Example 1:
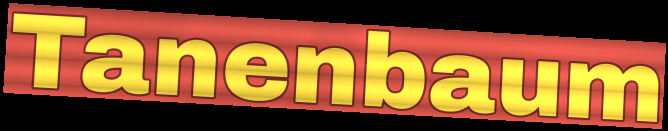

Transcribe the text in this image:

Tanenbaum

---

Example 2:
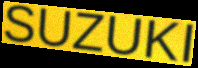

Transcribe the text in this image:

SUZUKI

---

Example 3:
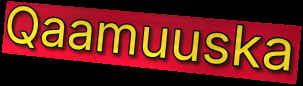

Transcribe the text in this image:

Qaamuuska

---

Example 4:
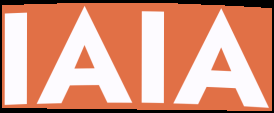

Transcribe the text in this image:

IAIA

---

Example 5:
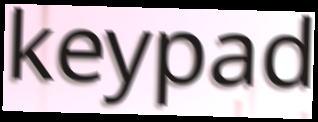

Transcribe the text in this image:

keypad